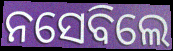
ନସେବିଲେ